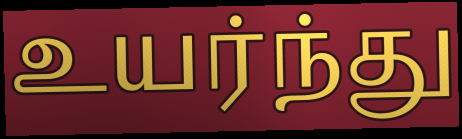
உயர்ந்து